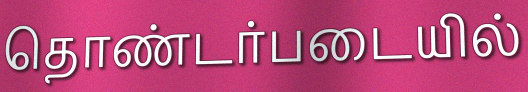
தொண்டர்படையில்